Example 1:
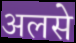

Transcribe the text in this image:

अलसे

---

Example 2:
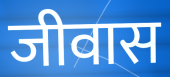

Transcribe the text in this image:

जीवास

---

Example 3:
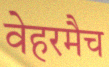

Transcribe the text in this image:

वेहरमैच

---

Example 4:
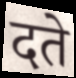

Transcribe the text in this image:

दते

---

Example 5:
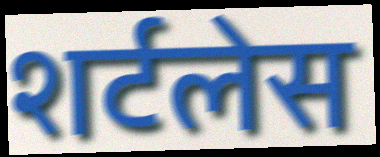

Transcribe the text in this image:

शर्टलेस